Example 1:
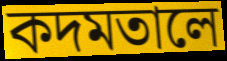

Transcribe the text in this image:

কদমতালে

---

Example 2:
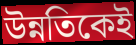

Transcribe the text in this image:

উন্নতিকেই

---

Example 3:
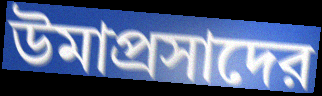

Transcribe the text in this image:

উমাপ্রসাদের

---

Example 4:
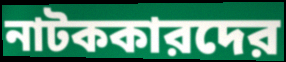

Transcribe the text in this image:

নাটককারদের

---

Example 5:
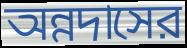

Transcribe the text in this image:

অন্নদাসের